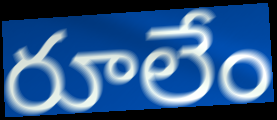
రూలేం